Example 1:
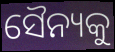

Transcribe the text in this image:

ସୈନ୍ୟକୁ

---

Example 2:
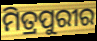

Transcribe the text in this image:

ମିତ୍ରପୁରୀର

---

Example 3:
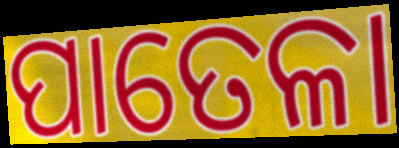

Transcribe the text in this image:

ପାତେଳା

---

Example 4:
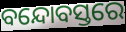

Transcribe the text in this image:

ବନ୍ଦୋବସ୍ତରେ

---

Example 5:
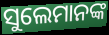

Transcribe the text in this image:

ସୁଲେମାନଙ୍କ